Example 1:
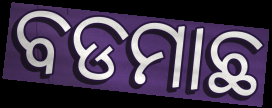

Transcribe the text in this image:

ବଡମାଛ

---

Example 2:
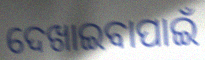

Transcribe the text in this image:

ଦେଖାଇବାପାଇଁ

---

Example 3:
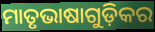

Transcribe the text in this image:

ମାତୃଭାଷାଗୁଡ଼ିକର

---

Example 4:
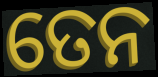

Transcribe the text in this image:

ତେନ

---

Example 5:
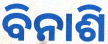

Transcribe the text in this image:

ବିନାଶି